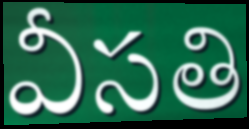
వీసతి